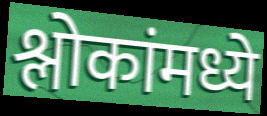
श्लोकांमध्ये